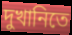
দুখানিতে